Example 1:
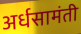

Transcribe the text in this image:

अर्धसामंती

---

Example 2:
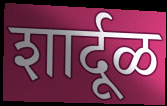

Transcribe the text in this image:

शार्दूळ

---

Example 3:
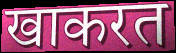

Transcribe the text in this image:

खाकरत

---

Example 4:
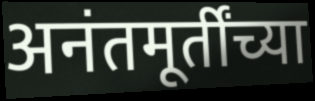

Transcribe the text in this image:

अनंतमूर्तींच्या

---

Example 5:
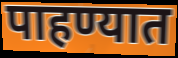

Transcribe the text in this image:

पाहण्यात